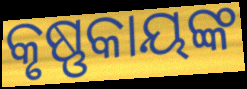
କୃଷ୍ଣକାୟଙ୍କ